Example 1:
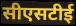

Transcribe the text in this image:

सीएसटीई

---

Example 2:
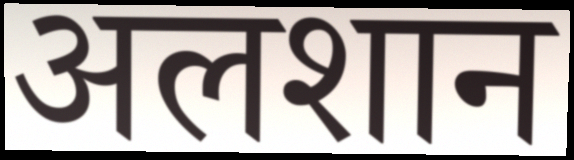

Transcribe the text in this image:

अलशान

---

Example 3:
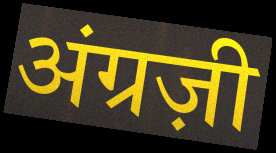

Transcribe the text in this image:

अंग्रज़ी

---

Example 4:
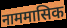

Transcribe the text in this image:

नाममासिक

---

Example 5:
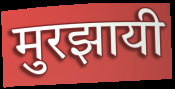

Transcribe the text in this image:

मुरझायी